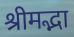
श्रीमद्भा